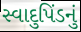
સ્વાદુપિંડનું